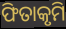
ଫିତାକୃମି